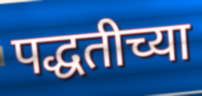
पद्धतीच्या